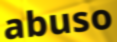
abuso